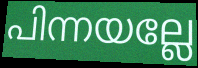
പിന്നയല്ലേ